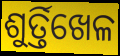
ଶୁର୍ତ୍ତିଖେଳ